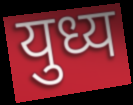
युध्य